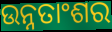
ଉନ୍ନତାଂଶର